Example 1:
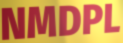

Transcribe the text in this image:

NMDPL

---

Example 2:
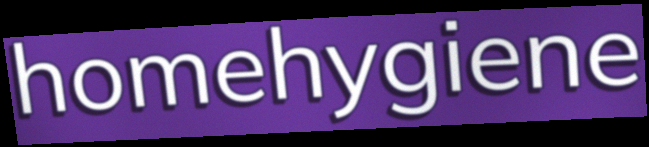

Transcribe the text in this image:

homehygiene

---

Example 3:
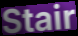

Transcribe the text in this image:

Stair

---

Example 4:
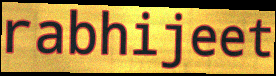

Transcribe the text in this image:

rabhijeet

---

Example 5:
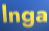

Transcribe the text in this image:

lnga